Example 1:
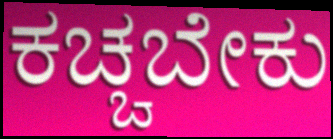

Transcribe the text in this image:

ಕಚ್ಚಬೇಕು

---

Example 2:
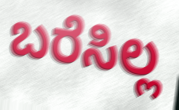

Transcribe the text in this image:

ಬರೆಸಿಲ್ಲ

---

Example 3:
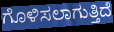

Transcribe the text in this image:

ಗೊಳಿಸಲಾಗುತ್ತಿದೆ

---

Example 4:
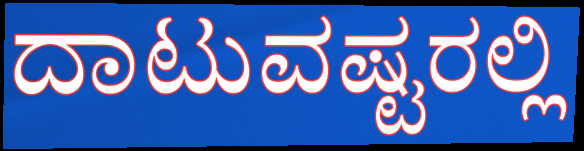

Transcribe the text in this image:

ದಾಟುವಷ್ಟರಲ್ಲಿ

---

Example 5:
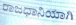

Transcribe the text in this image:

ರಾಜಧಾನಿಯಾಗಿ